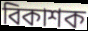
বিকাশক